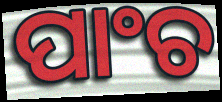
ପାଂଚ